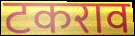
टकराव